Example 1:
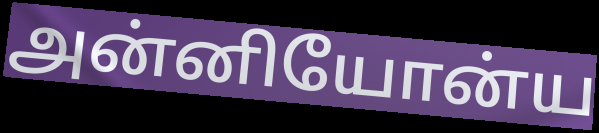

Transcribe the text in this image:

அன்னியோன்ய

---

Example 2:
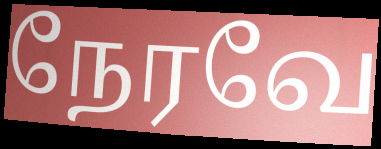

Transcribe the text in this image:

நேரவே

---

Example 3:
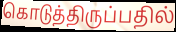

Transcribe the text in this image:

கொடுத்திருப்பதில்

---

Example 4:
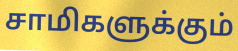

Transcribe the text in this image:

சாமிகளுக்கும்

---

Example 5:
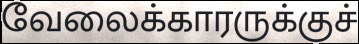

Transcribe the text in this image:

வேலைக்காரருக்குச்